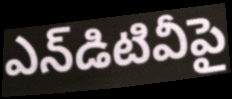
ఎన్‌డిటివీపై